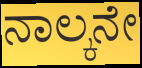
ನಾಲ್ಕನೇ